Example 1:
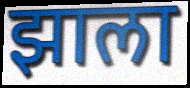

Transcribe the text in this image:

झाला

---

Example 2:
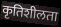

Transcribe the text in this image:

कृतिशीलता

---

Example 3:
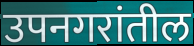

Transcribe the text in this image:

उपनगरांतील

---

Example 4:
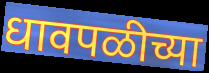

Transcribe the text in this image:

धावपळीच्या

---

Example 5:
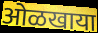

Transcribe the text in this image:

ओळखाया